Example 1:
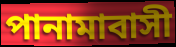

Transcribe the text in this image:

পানামাবাসী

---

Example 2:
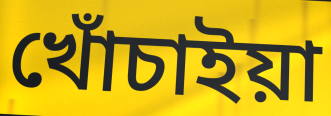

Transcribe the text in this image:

খোঁচাইয়া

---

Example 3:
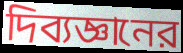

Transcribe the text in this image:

দিব্যজ্ঞানের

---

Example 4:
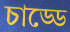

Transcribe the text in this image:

চাড্ডে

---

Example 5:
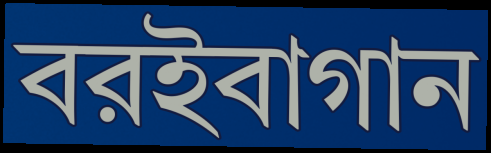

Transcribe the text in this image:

বরইবাগান